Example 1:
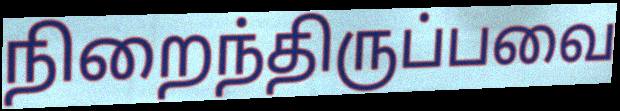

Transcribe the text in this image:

நிறைந்திருப்பவை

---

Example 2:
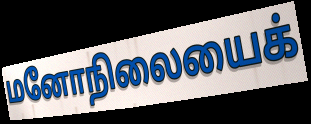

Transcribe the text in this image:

மனோநிலையைக்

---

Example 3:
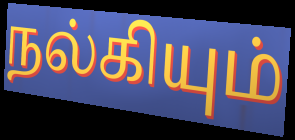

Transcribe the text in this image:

நல்கியும்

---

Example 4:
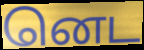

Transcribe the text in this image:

னெட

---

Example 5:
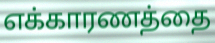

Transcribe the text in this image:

எக்காரணத்தை